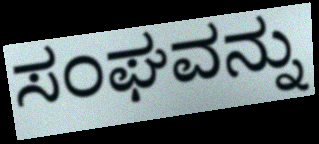
ಸಂಘವನ್ನು